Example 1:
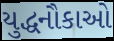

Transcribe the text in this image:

યુદ્ધનૌકાઓ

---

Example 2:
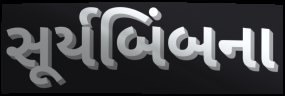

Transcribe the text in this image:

સૂર્યબિંબના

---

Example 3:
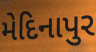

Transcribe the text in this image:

મેદિનાપુર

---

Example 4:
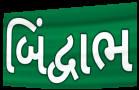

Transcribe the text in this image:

બિંદ્વાભ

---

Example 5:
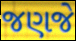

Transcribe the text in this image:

જણજે